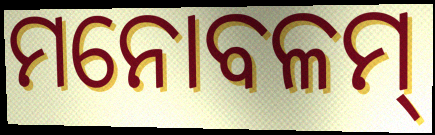
ମନୋବଳମ୍